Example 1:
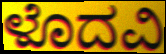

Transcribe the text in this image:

ಳೊದವಿ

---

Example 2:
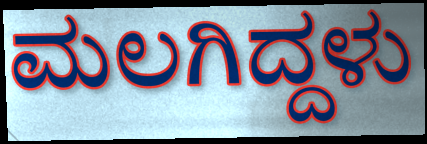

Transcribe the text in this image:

ಮಲಗಿದ್ದಳು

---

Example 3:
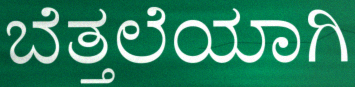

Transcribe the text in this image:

ಬೆತ್ತಲೆಯಾಗಿ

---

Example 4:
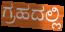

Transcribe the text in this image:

ಗ್ರಹದಲ್ಲಿ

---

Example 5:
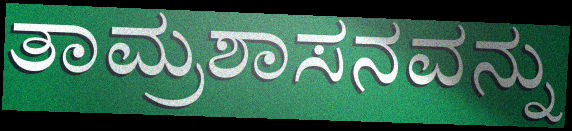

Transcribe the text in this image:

ತಾಮ್ರಶಾಸನವನ್ನು